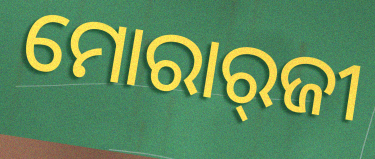
ମୋରାର୍‍ଜୀ